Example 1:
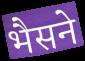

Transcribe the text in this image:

भैसने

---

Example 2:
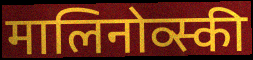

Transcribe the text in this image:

मालिनोव्स्की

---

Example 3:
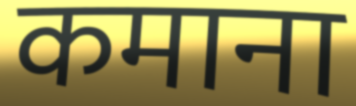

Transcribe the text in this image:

कमाना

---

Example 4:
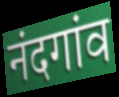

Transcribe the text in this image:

नंदगांव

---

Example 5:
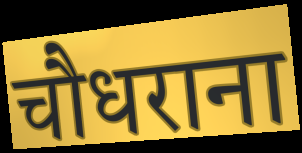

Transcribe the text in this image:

चौधराना